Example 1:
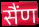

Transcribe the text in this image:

सैंण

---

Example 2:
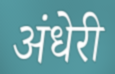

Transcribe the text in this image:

अंधेरी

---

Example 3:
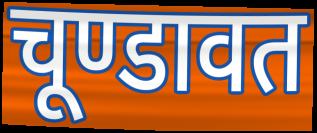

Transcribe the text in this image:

चूण्डावत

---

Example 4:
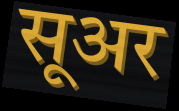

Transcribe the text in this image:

सूअर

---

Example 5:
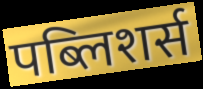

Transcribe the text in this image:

पब्लिशर्स